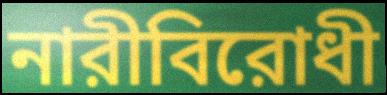
নারীবিরোধী